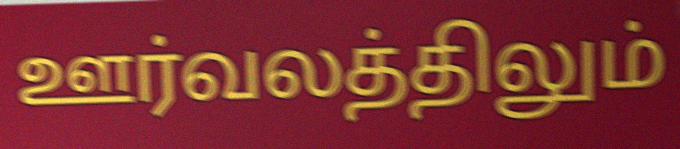
ஊர்வலத்திலும்